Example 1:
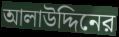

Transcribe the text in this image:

আলাউদ্দিনের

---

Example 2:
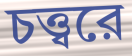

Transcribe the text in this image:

চত্ত্বরে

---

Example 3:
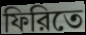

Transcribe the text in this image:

ফিরিতে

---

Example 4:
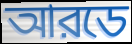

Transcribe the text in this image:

আরডে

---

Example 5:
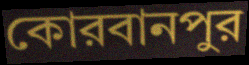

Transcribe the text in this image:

কোরবানপুর